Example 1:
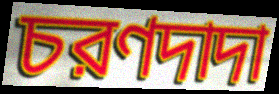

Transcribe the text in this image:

চরণদাদা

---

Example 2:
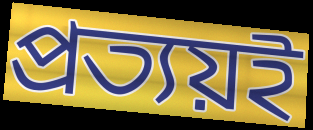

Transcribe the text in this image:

প্রত্যয়ই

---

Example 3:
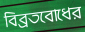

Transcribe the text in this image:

বিব্রতবোধের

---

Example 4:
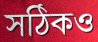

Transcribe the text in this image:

সঠিকও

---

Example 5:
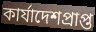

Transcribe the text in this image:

কার্যাদেশপ্রাপ্ত